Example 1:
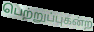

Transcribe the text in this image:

பெற்றுப்புகன்ற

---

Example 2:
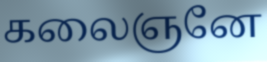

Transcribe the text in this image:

கலைஞனே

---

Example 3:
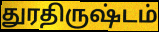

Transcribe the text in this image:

துரதிருஷ்டம்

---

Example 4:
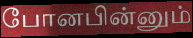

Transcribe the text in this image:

போனபின்னும்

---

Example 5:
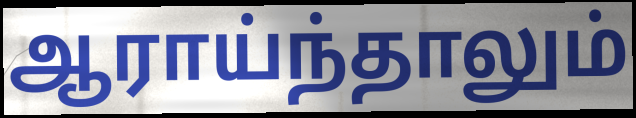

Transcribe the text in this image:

ஆராய்ந்தாலும்